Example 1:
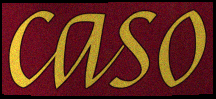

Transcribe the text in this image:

caso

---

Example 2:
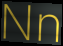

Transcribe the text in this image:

Nn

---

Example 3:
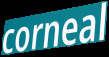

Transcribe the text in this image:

corneal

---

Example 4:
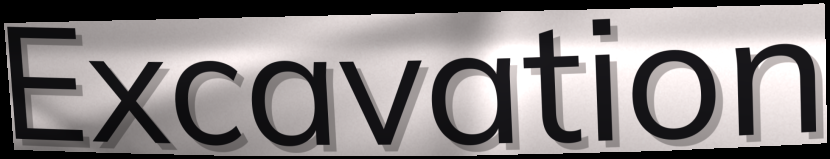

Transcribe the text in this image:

Excavation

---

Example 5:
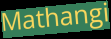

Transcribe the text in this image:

Mathangi